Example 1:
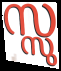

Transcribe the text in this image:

സ്സു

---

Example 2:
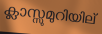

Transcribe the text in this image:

ക്ലാസ്സുമുറിയില്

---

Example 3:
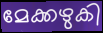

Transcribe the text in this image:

മേക്കഴുകി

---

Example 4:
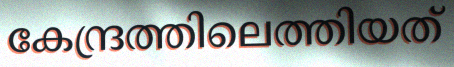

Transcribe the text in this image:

കേന്ദ്രത്തിലെത്തിയത്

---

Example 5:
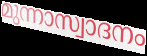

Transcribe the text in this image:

മുന്നാസ്വാദനം